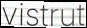
vistrut